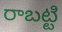
రాబట్టి